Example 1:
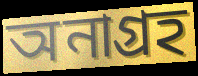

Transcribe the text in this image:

অনাগ্রহ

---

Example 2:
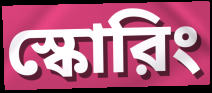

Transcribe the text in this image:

স্কোরিং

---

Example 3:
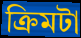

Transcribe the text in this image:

ক্রিমটা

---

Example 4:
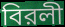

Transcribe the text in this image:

বিরলী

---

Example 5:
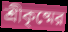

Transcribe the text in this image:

শ্রীকৃষ্মের